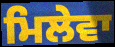
ਮਿਲੇਵਾ